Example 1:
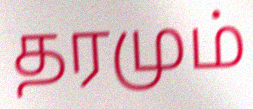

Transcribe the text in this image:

தரமும்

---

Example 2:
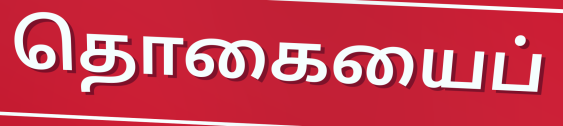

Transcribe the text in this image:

தொகையைப்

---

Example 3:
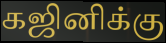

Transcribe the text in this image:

கஜினிக்கு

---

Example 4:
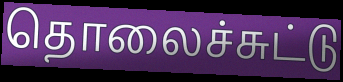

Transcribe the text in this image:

தொலைச்சுட்டு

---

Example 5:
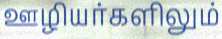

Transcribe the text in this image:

ஊழியர்களிலும்